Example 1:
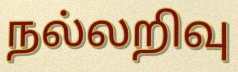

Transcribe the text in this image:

நல்லறிவு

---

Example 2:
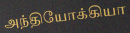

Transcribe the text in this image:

அந்தியோக்கியா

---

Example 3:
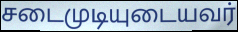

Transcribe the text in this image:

சடைமுடியுடையவர்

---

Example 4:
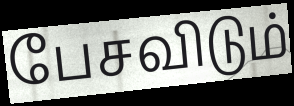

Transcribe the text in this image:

பேசவிடும்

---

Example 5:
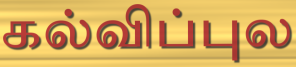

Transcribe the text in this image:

கல்விப்புல